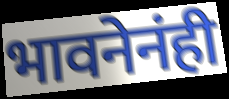
भावनेनंही